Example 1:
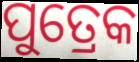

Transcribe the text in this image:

ପୁତ୍ରେକ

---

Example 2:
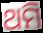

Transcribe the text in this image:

ଥମି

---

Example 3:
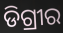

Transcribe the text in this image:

ଡିଗ୍ରୀର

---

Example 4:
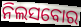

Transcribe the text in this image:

ନିଲସବୋର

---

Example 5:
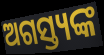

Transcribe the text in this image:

ଅଗସ୍ତ୍ୟଙ୍କ